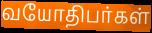
வயோதிபர்கள்